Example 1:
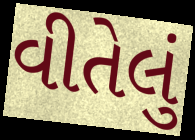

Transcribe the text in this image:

વીતેલું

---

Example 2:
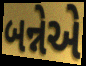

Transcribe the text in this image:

બન્નેએ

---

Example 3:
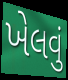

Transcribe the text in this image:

ખેલવું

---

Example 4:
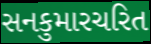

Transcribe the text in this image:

સનકુમારચરિત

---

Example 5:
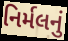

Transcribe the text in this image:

નિર્મલનું